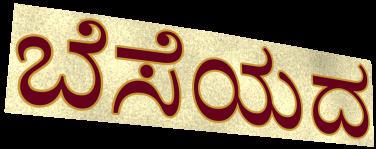
ಬೆಸೆಯದ